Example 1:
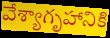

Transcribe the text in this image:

వేశ్యాగృహానికి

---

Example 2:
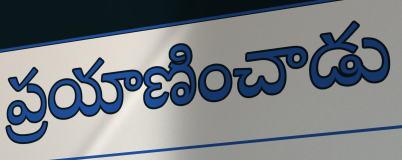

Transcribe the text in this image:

ప్రయాణించాడు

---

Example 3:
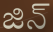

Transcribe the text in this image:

జిన్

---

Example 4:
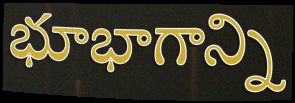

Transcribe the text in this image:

భూభాగాన్ని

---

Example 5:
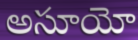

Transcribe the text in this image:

అసూయో